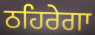
ਠਹਿਰੇਗਾ